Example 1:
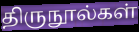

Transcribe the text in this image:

திருநூல்கள்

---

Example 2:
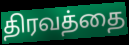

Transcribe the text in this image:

திரவத்தை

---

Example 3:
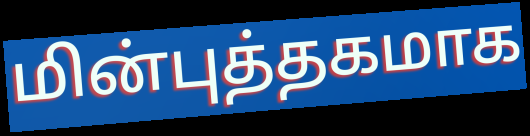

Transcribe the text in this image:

மின்புத்தகமாக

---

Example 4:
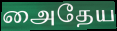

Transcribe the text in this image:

அைதேய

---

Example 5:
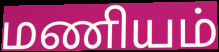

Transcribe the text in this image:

மணியம்